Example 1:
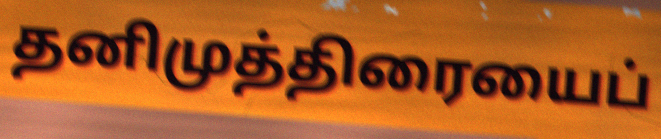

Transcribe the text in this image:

தனிமுத்திரையைப்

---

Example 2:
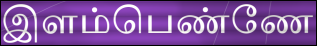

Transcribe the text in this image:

இளம்பெண்ணே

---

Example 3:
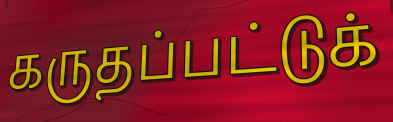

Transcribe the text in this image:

கருதப்பட்டுக்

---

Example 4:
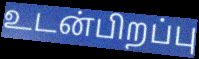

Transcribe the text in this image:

உடன்பிறப்பு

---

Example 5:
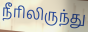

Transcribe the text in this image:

நீரிலிருந்து